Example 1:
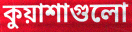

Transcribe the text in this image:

কুয়াশাগুলো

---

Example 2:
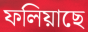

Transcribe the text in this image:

ফলিয়াছে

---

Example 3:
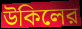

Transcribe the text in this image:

উকিলের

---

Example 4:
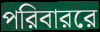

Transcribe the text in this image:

পরিবাররে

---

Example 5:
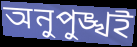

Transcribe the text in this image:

অনুপুঙ্খই